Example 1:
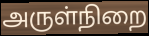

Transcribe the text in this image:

அருள்நிறை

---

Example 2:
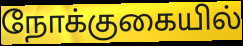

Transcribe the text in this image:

நோக்குகையில்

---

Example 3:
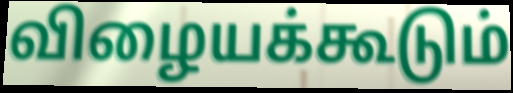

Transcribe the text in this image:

விழையக்கூடும்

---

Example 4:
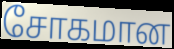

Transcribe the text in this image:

சோகமான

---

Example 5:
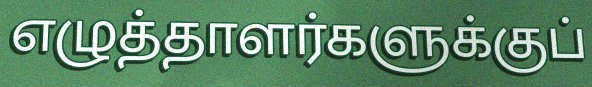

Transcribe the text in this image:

எழுத்தாளர்களுக்குப்